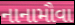
નાનામૌવા